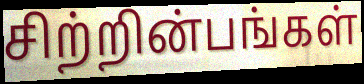
சிற்றின்பங்கள்